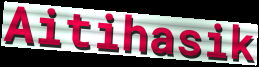
Aitihasik